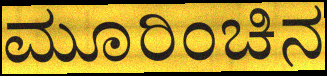
ಮೂರಿಂಚಿನ